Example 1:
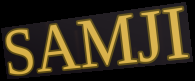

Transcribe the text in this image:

SAMJI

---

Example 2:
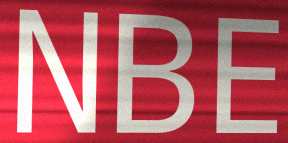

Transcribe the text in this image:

NBE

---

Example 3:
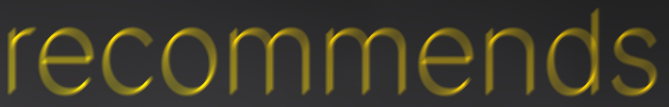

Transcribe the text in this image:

recommends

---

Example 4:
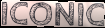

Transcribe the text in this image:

ICONIC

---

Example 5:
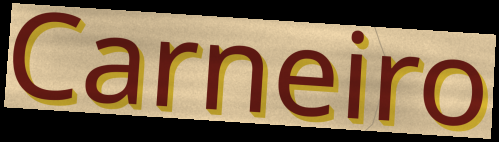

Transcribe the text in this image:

Carneiro